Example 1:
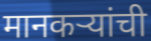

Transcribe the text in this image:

मानकऱ्यांची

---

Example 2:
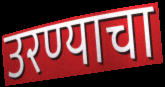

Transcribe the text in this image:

उरण्याचा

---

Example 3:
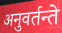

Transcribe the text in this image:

अनुवर्तन्ते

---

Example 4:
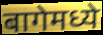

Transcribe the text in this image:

बागेमध्ये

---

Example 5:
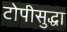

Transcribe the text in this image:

टोपीसुद्धा